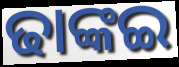
ଢାଙ୍କଇ